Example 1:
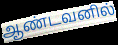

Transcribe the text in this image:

ஆண்டவனில்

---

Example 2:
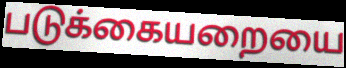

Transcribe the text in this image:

படுக்கையறையை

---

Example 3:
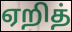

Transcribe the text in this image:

ஏறித்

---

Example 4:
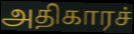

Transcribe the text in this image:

அதிகாரச்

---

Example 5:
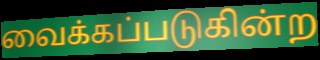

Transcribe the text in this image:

வைக்கப்படுகின்ற